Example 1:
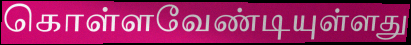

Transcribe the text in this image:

கொள்ளவேண்டியுள்ளது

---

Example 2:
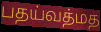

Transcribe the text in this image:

பதய்வத்மத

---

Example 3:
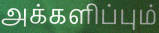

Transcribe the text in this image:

அக்களிப்பும்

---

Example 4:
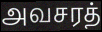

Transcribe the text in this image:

அவசரத்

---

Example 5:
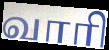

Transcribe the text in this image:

வாரி